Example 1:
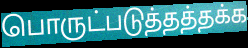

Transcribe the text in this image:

பொருட்படுத்தத்தக்க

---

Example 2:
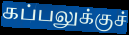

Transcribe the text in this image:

கப்பலுக்குச்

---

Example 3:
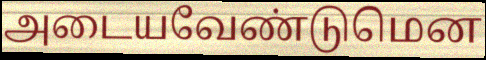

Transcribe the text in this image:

அடையவேண்டுமென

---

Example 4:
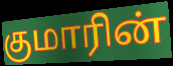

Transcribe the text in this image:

குமாரின்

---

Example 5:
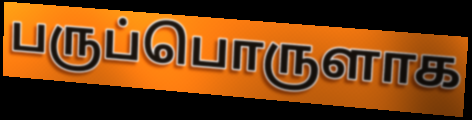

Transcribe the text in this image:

பருப்பொருளாக